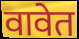
वावेत